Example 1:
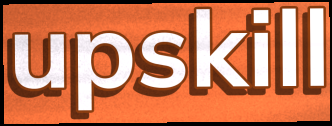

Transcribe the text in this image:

upskill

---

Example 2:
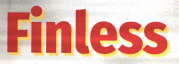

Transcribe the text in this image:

Finless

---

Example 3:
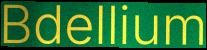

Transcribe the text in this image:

Bdellium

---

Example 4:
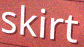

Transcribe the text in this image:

skirt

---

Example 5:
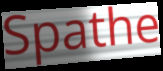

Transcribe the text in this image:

Spathe